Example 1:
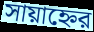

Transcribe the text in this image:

সায়াহ্নের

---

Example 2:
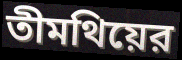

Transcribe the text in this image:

তীমথিয়ের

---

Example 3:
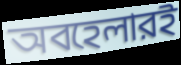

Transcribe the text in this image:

অবহেলারই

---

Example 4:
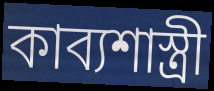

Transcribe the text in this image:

কাব্যশাস্ত্রী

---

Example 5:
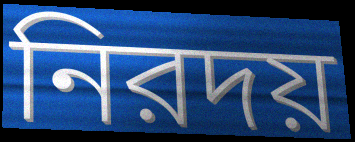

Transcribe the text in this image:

নিরদয়